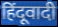
हिंदूवादी